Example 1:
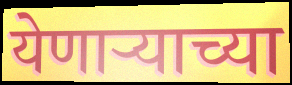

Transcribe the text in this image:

येणाऱ्याच्या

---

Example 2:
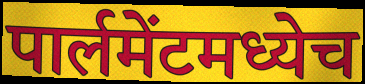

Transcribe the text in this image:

पार्लमेंटमध्येच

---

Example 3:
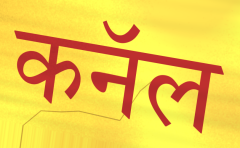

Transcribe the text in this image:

कनॅल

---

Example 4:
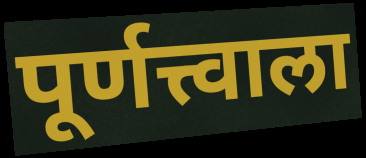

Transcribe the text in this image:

पूर्णत्त्वाला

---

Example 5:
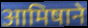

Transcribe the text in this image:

आमिषाने